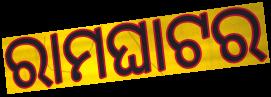
ରାମଘାଟର